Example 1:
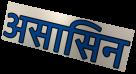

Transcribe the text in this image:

असासिन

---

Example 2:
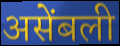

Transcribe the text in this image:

असेंबली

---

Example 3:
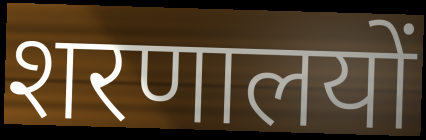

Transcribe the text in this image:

शरणालयों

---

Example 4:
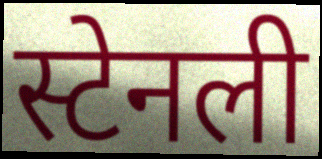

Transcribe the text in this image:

स्टेनली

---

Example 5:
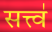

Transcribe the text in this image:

सत्त्व॑